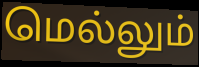
மெல்லும்